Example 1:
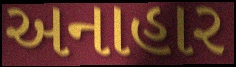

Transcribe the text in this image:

અનાહાર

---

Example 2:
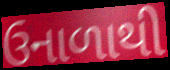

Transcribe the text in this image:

ઉનાળાથી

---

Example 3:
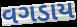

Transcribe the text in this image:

વગડાય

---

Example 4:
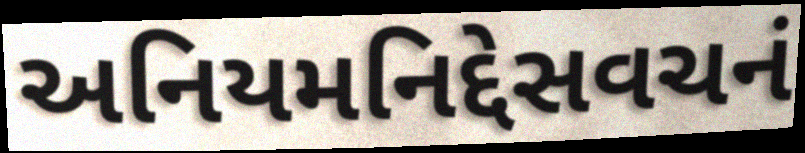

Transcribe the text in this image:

અનિયમનિદ્દેસવચનં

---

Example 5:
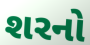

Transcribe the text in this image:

શરનો